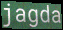
jagda